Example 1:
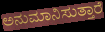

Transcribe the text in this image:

ಅನುಮಾನಿಸುತ್ತಾರೆ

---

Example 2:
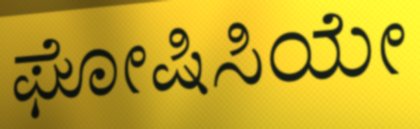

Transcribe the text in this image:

ಘೋಷಿಸಿಯೇ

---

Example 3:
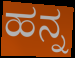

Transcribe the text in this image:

ಹನ್ನ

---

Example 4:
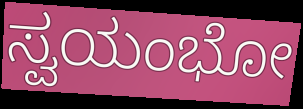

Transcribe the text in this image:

ಸ್ವಯಂಭೋ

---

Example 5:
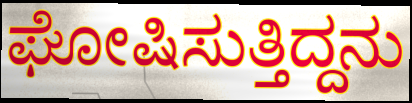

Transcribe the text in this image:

ಘೋಷಿಸುತ್ತಿದ್ದನು